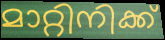
മാറ്റിനിക്ക്